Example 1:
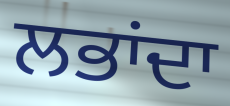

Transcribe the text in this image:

ਲਭਾਂਦਾ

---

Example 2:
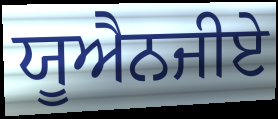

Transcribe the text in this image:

ਯੂਐਨਜੀਏ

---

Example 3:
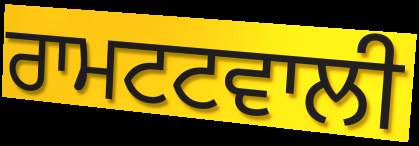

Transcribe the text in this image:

ਰਾਮਟਟਵਾਲੀ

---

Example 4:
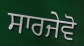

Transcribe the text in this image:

ਸਾਰਜੇਵੋ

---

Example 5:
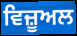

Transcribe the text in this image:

ਵਿਜ਼ੂਅਲ